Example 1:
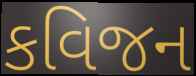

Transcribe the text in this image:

કવિજન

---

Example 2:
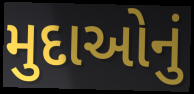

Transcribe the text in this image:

મુદાઓનું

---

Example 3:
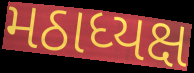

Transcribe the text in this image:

મઠાધ્યક્ષ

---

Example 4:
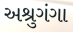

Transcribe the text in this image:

અશ્રુગંગા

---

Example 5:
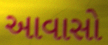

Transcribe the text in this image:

આવાસો